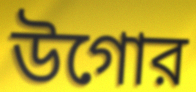
উগোর